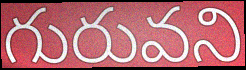
గురువని